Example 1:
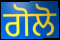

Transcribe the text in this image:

ਗੋਲੋ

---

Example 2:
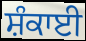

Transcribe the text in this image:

ਸ਼ੰਕਾਈ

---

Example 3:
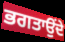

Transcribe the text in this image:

ਭਗਤਾਉਂਦੇ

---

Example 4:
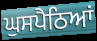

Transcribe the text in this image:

ਘੁਸਪੈਠਿਆਂ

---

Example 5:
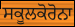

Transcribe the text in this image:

ਸਕੂਲਕੋਰੋਨਾ